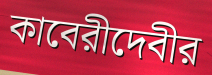
কাবেরীদেবীর